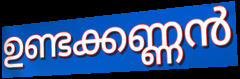
ഉണ്ടക്കണ്ണൻ